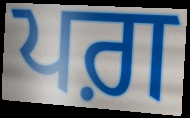
ਪਗ਼